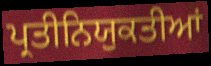
ਪ੍ਰਤੀਨਿਯੁਕਤੀਆਂ